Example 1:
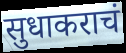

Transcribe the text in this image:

सुधाकराचं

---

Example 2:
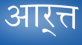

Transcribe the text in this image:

आर्त्त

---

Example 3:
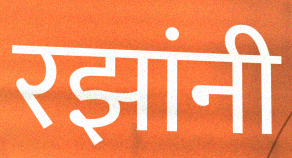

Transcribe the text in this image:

रझांनी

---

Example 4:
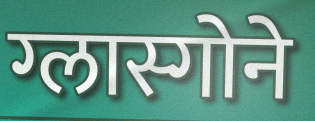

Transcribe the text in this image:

ग्लास्गोने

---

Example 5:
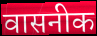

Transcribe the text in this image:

वासनीक